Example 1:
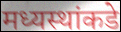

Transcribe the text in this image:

मध्यस्थांकडे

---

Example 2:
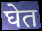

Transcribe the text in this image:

घेत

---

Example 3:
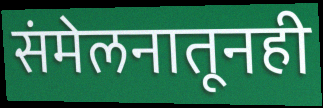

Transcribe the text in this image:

संमेलनातूनही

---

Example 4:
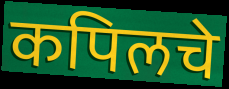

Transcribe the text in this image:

कपिलचे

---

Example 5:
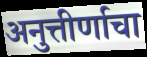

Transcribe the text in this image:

अनुत्तीर्णाचा